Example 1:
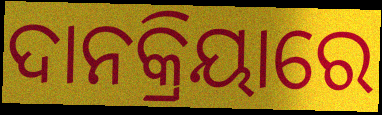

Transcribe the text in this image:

ଦାନକ୍ରିୟାରେ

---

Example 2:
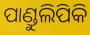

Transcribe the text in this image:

ପାଣ୍ଡୁଲିପିକି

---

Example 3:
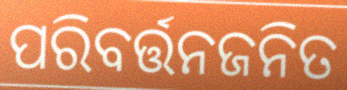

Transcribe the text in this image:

ପରିବର୍ତ୍ତନଜନିତ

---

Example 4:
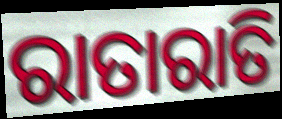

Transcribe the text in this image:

ରାତାରାତି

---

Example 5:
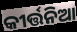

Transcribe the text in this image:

କୀର୍ତ୍ତନିଆ